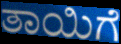
ತಾಯಿಗೆ